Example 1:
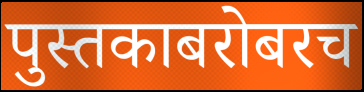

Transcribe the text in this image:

पुस्तकाबरोबरच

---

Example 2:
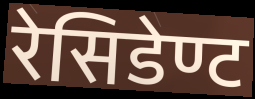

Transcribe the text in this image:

रेसिडेण्ट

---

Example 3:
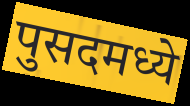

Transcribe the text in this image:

पुसदमध्ये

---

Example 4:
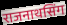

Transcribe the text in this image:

राजनाथसिंग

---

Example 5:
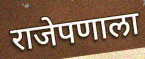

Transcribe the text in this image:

राजेपणाला